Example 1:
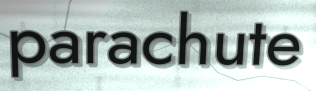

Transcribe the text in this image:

parachute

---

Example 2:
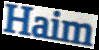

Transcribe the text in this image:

Haim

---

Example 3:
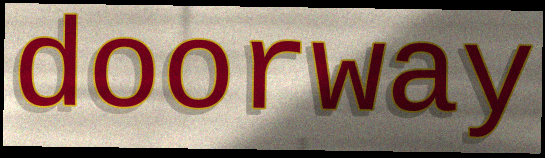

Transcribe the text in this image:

doorway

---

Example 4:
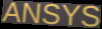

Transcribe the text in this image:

ANSYS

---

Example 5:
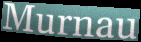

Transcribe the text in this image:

Murnau